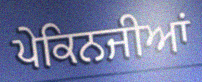
ਪੇਕਿਨਜੀਆਂ